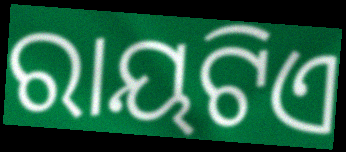
ରାୟଟିଏ